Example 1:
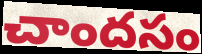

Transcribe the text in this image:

చాందసం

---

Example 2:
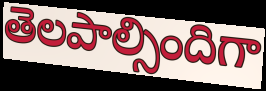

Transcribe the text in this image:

తెలపాల్సిందిగా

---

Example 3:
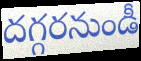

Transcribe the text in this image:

దగ్గరనుండీ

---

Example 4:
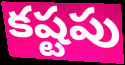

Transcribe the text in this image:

కష్టపు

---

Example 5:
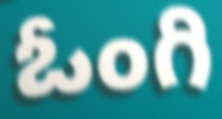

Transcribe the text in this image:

ఓంగి